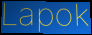
Lapok